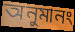
অনুমানং